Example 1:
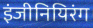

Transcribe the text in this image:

इंजीनियिरंग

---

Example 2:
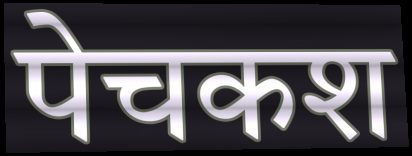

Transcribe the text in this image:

पेचकश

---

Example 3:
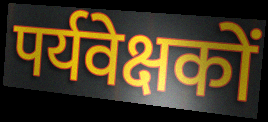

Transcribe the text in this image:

पर्यवेक्षकों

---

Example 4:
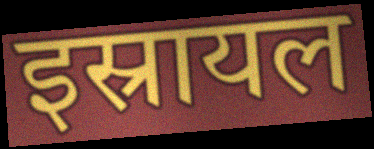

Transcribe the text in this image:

इस्रायल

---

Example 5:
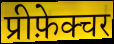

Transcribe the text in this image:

प्रीफ़ेक्चर